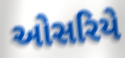
ઓસરિયે